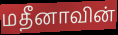
மதீனாவின்